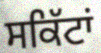
ਸਕਿੱਟਾਂ